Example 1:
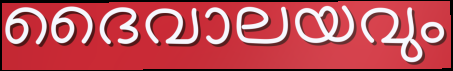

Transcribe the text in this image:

ദൈവാലയവും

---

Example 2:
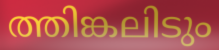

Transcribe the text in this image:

ത്തിങ്കലിടും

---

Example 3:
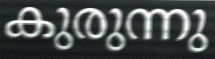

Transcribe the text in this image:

കുരുന്നു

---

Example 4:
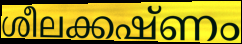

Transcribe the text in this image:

ശീലക്കഷ്ണം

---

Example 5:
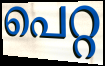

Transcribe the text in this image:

പെറ്റ